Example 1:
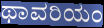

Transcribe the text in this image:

ಥಾವರಿಯಂ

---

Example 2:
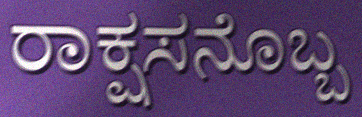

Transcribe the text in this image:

ರಾಕ್ಷಸನೊಬ್ಬ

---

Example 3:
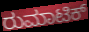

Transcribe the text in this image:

ರುಮಾಟಿಕ್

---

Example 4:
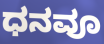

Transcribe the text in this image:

ಧನವೂ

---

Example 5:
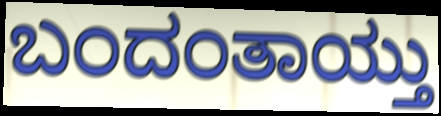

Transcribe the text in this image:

ಬಂದಂತಾಯ್ತು